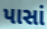
પાસાં